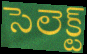
సెలెక్ట్